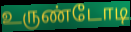
உருண்டோடி